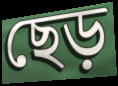
ছেড়